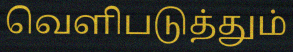
வெளிபடுத்தும்